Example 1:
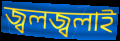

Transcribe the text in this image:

জ্বলজ্বলাই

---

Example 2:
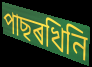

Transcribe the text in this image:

পাছৰখিনি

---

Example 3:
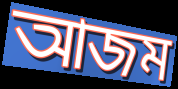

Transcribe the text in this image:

আজম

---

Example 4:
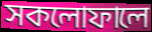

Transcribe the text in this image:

সকলোফালে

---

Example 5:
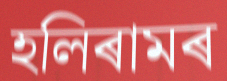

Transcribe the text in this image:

হলিৰামৰ